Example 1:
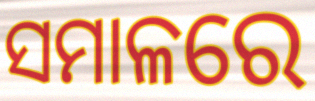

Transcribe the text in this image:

ସମାଳରେ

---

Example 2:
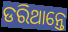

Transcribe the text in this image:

ଡରିଥାନ୍ତେ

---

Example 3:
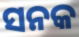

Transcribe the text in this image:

ସନକ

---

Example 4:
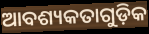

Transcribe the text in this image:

ଆବଶ୍ୟକତାଗୁଡ଼ିକ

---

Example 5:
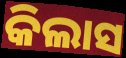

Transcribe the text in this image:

କିଲାସ